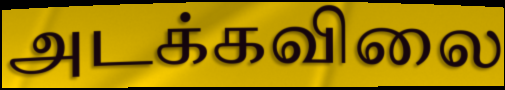
அடக்கவிலை